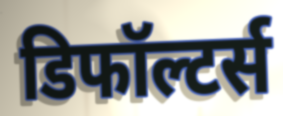
डिफॉल्टर्स